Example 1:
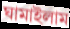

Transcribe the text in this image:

ঘামাইলাম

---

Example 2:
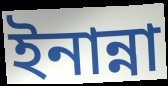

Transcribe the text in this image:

ইনান্না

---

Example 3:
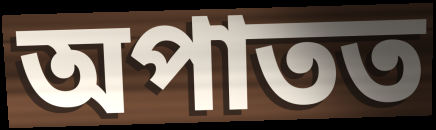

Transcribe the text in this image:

অপাতত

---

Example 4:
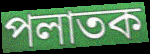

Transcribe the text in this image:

পলাতক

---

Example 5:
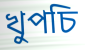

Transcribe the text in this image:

খুপচি